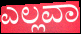
ಎಲ್ಲವಾ